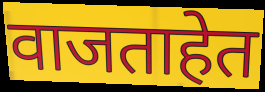
वाजताहेत